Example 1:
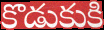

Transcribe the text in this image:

కొడుకుకి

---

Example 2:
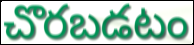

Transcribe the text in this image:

చొరబడటం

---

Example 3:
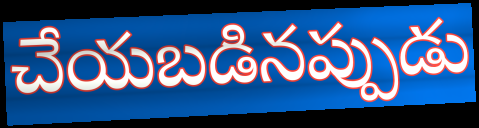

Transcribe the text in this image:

చేయబడినప్పుడు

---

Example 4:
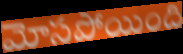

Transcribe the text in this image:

మోసపోయింది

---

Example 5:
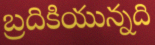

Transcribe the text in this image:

బ్రదికియున్నది